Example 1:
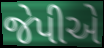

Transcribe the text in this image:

જેપીએ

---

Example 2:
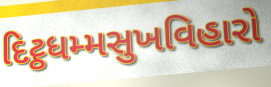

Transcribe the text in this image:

દિટ્ઠધમ્મસુખવિહારો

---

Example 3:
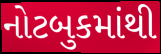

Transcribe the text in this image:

નોટબુકમાંથી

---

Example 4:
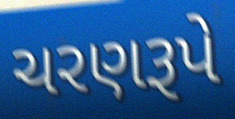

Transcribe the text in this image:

ચરણરૂપે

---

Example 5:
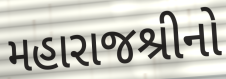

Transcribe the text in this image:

મહારાજશ્રીનો